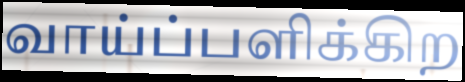
வாய்ப்பளிக்கிற